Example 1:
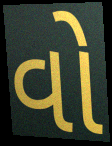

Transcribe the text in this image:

વો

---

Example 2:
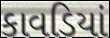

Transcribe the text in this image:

કાવડિયાં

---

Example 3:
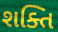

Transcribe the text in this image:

શક્તિ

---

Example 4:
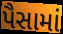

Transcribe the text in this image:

પૈસામાં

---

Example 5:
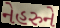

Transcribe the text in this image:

નેહરુને